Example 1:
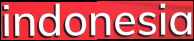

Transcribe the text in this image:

indonesia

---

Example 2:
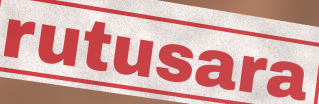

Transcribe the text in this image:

rutusara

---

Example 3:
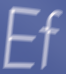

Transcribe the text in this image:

Ef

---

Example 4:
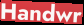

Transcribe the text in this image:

Handwr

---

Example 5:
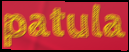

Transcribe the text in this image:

patula